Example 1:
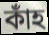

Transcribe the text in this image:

কাঁহ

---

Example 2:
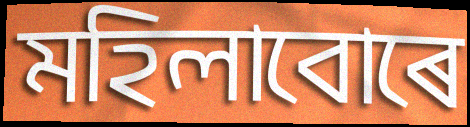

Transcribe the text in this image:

মহিলাবোৰে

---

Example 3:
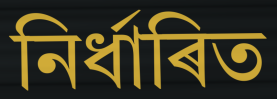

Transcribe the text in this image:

নিৰ্ধাৰিত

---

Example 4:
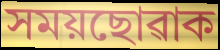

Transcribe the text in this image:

সময়ছোৱাক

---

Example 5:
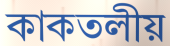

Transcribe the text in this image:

কাকতলীয়